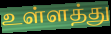
உள்ளத்து